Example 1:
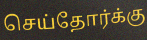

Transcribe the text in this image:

செய்தோர்க்கு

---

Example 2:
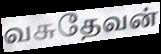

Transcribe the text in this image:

வசுதேவன்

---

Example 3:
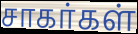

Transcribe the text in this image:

சாகர்கள்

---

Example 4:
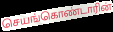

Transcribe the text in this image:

செயங்கொண்டாரின்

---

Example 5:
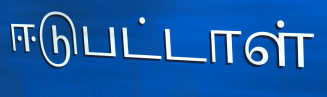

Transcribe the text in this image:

ஈடுபட்டாள்